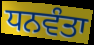
ਧਨਵੰਤਾ